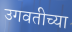
उगवतीच्या